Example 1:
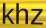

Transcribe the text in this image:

khz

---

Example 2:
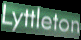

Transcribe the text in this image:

Lyttleton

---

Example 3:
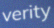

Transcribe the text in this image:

verity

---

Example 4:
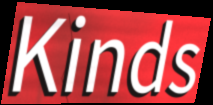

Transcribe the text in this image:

Kinds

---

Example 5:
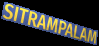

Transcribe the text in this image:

SITRAMPALAM